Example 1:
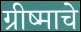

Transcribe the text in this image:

ग्रीष्माचे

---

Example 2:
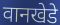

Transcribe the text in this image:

वानखेडे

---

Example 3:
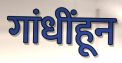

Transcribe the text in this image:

गांधींहून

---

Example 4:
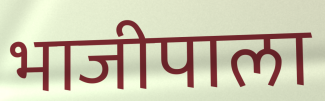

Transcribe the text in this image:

भाजीपाला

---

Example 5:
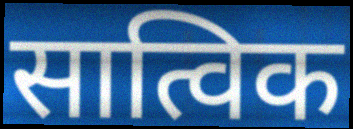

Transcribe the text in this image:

सात्विक